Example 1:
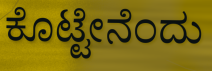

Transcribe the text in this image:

ಕೊಟ್ಟೇನೆಂದು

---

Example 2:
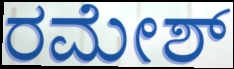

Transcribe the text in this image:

ರಮೇಶ್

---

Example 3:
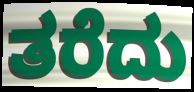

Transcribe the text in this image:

ತರೆದು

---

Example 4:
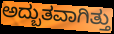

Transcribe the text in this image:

ಅದ್ಬುತವಾಗಿತ್ತು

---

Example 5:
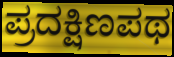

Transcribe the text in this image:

ಪ್ರದಕ್ಷಿಣಪಥ